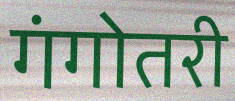
गंगोतरी